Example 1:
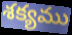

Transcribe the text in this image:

శక్యము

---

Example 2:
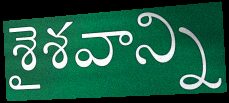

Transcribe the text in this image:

శైశవాన్ని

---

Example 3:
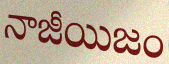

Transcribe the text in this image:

నాజీయిజం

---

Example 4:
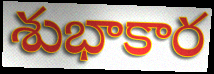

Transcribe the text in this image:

శుభాకార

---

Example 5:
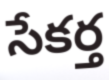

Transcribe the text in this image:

సేకర్త